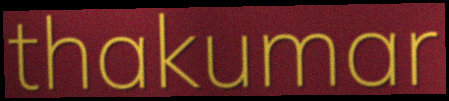
thakumar